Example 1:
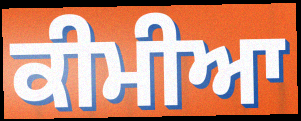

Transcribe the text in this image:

ਕੀਮੀਆ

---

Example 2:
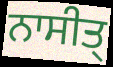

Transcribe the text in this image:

ਨਾਸੀਤ੍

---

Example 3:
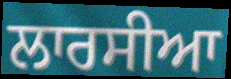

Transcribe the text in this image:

ਲਾਰਸੀਆ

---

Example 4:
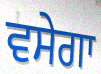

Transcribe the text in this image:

ਵਸੇਗਾ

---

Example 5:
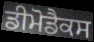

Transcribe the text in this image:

ਡੀਮੋਡੈਕਸ